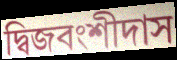
দ্বিজবংশীদাস